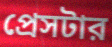
প্রেসটার